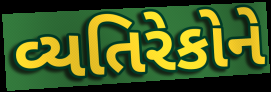
વ્યતિરેકોને